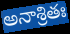
అనాశ్రితః